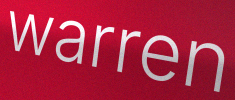
warren